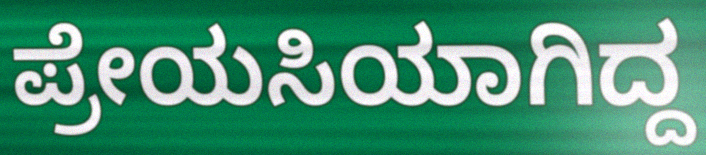
ಪ್ರೇಯಸಿಯಾಗಿದ್ದ